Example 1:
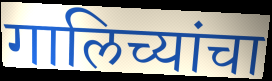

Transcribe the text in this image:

गालिच्यांचा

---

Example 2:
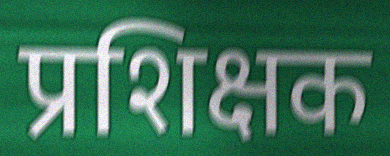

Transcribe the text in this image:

प्रशिक्षक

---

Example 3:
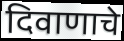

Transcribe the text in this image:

दिवाणाचे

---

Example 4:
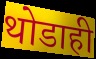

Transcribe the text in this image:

थोडाही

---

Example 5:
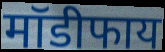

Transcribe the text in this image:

मॉडीफाय